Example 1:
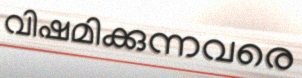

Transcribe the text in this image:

വിഷമിക്കുന്നവരെ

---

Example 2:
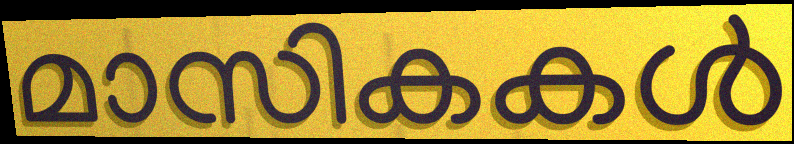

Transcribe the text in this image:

മാസികകൾ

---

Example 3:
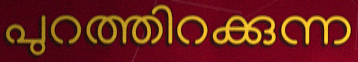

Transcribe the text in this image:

പുറത്തിറക്കുന്ന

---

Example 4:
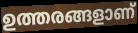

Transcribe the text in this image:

ഉത്തരങ്ങളാണ്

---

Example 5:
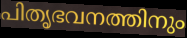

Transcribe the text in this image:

പിതൃഭവനത്തിനും